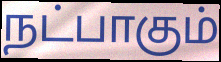
நட்பாகும்